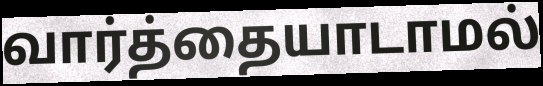
வார்த்தையாடாமல்